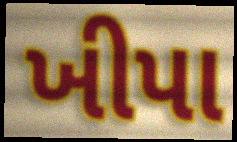
ખીપા